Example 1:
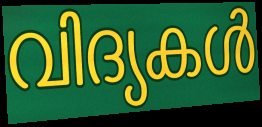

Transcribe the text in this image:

വിദ്യകൾ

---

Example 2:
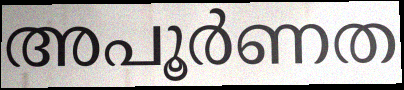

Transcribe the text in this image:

അപൂർണത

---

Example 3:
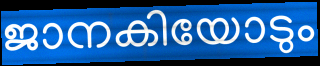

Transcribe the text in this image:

ജാനകിയോടും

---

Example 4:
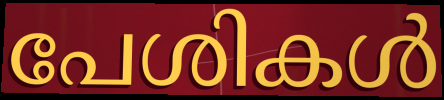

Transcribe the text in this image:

പേശികൾ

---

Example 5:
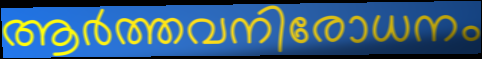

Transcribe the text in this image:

ആർത്തവനിരോധനം